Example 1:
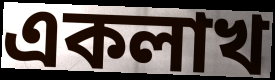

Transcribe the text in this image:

একলাখ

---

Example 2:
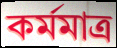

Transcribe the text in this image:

কর্মমাত্র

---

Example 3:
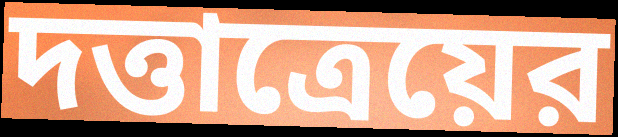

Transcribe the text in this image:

দত্তাত্রেয়ের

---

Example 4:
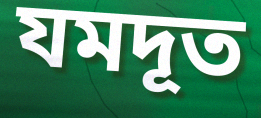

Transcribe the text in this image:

যমদূত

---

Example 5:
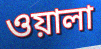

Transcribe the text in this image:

ওয়ালা